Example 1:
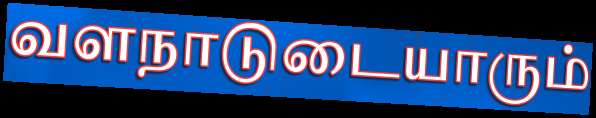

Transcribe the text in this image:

வளநாடுடையாரும்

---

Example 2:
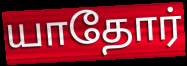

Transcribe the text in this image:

யாதோர்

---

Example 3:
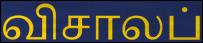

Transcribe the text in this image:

விசாலப்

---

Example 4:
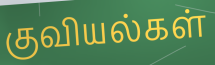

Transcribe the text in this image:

குவியல்கள்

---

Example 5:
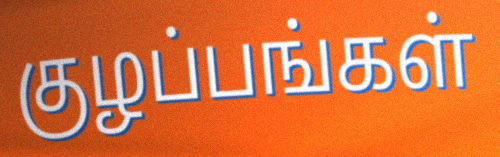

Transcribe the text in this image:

குழப்பங்கள்